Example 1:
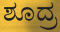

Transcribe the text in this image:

ಶೂದ್ರ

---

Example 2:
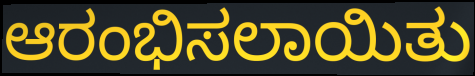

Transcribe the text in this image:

ಆರಂಭಿಸಲಾಯಿತು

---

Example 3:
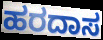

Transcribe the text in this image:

ಹರದಾಸ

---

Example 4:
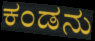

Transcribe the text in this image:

ಕಂಡನು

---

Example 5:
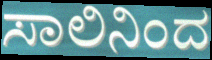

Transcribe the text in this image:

ಸಾಲಿನಿಂದ